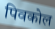
पिवकोल